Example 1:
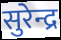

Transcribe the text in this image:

सुरेन्द्र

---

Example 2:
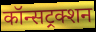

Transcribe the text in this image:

कॉन्सट्रक्शन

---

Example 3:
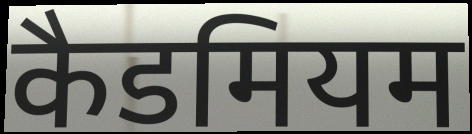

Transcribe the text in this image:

कैडमियम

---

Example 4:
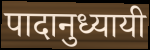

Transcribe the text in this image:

पादानुध्यायी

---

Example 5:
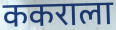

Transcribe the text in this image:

ककराला